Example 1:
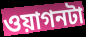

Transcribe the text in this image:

ওয়াগনটা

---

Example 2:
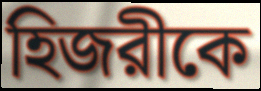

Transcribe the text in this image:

হিজরীকে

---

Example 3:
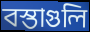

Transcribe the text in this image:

বস্তাগুলি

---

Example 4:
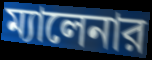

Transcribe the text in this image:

ম্যালেনার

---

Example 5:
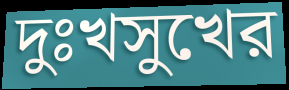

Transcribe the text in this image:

দুঃখসুখের